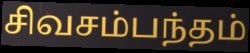
சிவசம்பந்தம்